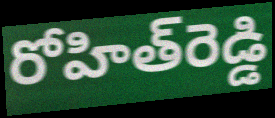
రోహిత్‌రెడ్డి